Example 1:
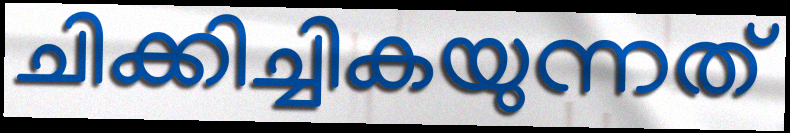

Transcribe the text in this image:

ചിക്കിച്ചികയുന്നത്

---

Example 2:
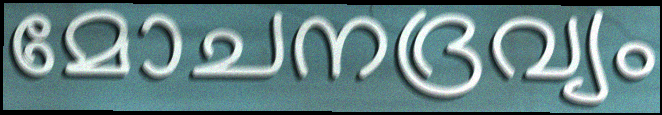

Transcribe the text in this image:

മോചനദ്രവ്യം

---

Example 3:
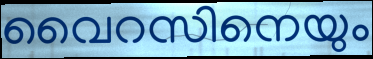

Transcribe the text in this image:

വൈറസിനെയും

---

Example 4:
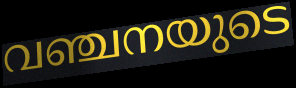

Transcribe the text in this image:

വഞ്ചനയുടെ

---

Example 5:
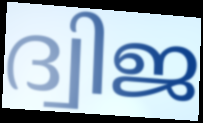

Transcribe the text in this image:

ദ്വിജ